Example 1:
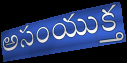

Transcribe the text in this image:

అసంయుక్త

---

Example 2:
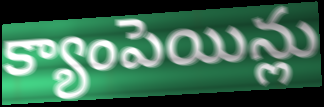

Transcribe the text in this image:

క్యాంపెయిన్లు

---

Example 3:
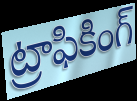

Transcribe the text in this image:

ట్రాఫికింగ్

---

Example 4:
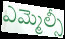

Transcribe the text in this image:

ఎమ్మెల్సీ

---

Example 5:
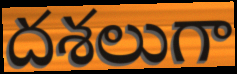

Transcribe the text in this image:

దశలుగా